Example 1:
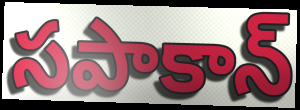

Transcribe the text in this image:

సపాకాన్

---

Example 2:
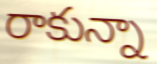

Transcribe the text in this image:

రాకున్నా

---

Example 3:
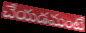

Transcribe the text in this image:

చేయడమంటే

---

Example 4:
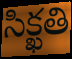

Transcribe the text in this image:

సిక్ఖతి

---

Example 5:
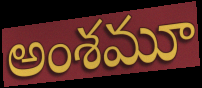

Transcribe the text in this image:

అంశమూ